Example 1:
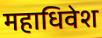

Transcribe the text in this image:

महाधिवेश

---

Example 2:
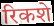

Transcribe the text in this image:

रिकशे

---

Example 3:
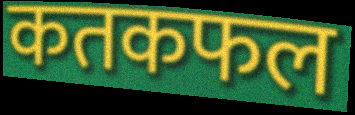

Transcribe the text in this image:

कतकफल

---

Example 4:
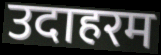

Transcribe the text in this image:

उदाहरम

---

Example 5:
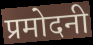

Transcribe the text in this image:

प्रमोदनी